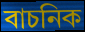
বাচনিক